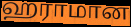
ஹராமான